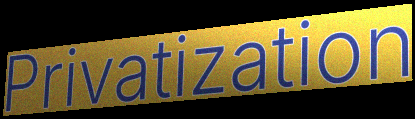
Privatization